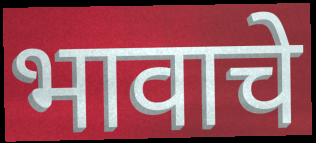
भावाचे